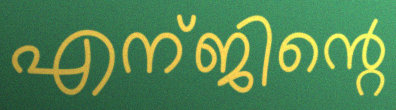
എന്ജിന്റെ